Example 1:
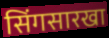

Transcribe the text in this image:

सिंगसारखा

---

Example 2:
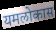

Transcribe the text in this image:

यमलोकास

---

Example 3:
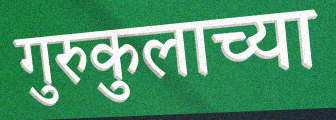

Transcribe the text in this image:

गुरुकुलाच्या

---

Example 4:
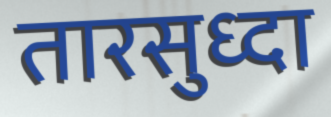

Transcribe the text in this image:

तारसुध्दा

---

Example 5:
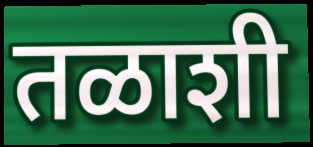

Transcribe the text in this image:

तळाशी